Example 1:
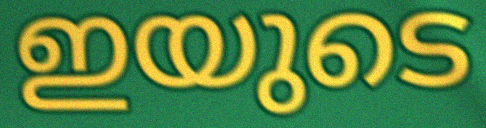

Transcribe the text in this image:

ഇയുടെ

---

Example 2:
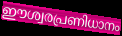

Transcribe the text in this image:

ഈശ്വരപ്രണിധാനം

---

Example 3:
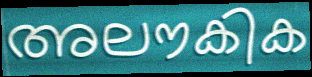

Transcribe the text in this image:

അലൗകിക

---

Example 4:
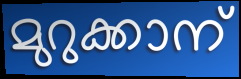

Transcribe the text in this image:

മുറുക്കാന്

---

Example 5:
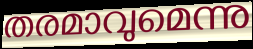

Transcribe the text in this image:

തരമാവുമെന്നു